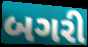
બગરી